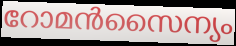
റോമൻസൈന്യം